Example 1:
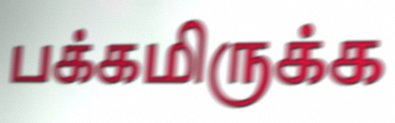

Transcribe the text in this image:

பக்கமிருக்க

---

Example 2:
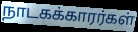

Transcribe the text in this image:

நாடகக்காரர்கள்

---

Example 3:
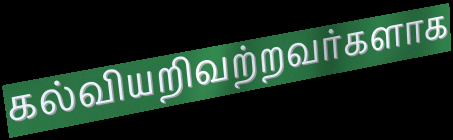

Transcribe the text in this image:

கல்வியறிவற்றவர்களாக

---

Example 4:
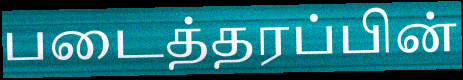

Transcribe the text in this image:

படைத்தரப்பின்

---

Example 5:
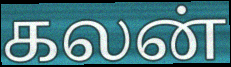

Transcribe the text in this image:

கலன்